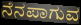
ನೆನಪಾಗುವ